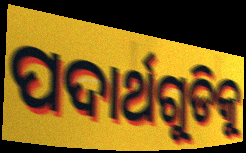
ପଦାର୍ଥଗୁଡିକୁ